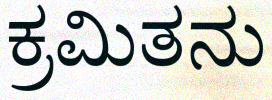
ಕ್ರಮಿತನು